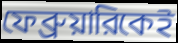
ফেব্রুয়ারিকেই